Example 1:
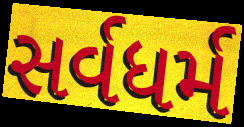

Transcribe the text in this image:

સર્વધર્મ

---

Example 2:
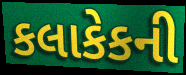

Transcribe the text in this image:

કલાકેકની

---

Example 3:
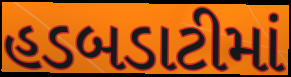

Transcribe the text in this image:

હડબડાટીમાં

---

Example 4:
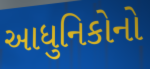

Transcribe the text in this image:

આધુનિકોનો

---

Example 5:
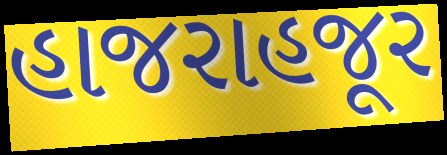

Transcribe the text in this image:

હાજરાહજૂર